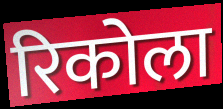
रिकोला